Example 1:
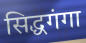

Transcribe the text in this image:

सिद्धगंगा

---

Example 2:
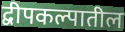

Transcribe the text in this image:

द्वीपकल्पातील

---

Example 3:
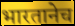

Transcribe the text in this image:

भारतानेच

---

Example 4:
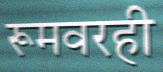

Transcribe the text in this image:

रूमवरही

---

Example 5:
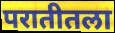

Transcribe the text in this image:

परातीतला